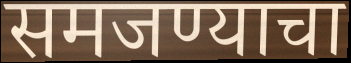
समजण्याचा